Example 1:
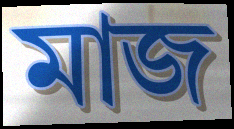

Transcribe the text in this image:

মাজ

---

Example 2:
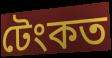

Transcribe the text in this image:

টেংকত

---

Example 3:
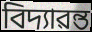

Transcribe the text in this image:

বিদ্যাৱন্ত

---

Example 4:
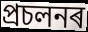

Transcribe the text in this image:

প্ৰচলনৰ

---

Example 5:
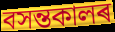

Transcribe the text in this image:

বসন্তকালৰ